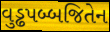
વુડ્ઢપબ્બજિતેન